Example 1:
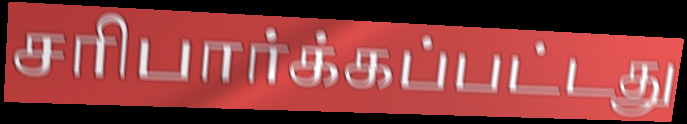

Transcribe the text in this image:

சரிபார்க்கப்பட்டது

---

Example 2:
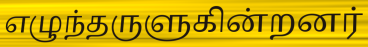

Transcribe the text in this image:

எழுந்தருளுகின்றனர்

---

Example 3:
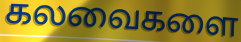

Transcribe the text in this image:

கலவைகளை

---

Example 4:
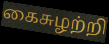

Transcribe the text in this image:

கைசுழற்றி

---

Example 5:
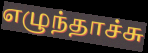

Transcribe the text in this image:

எழுந்தாச்சு